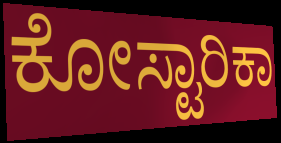
ಕೋಸ್ಟಾರಿಕಾ